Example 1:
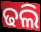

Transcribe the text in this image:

ଢଲି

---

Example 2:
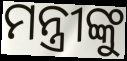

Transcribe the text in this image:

ମନ୍ତ୍ରୀଙ୍କୁ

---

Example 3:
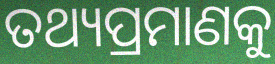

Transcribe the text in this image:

ତଥ୍ୟପ୍ରମାଣକୁ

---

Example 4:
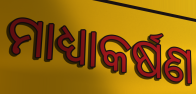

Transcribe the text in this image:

ମାଧ୍ୟାକର୍ଷଣ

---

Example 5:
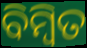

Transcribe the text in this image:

ବିମ୍ବିତ